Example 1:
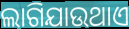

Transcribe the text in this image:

ଲାଗିଯାଉଥାଏ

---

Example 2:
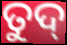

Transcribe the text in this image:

ତୁଦ୍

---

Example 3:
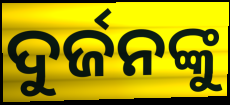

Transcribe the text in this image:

ଦୁର୍ଜନଙ୍କୁ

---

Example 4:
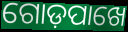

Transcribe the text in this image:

ଗୋଡ଼ପାଖେ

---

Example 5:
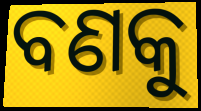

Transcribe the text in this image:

ବଣକୁ